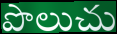
పొలుచు